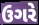
ઉગરે